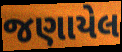
જણાયેલ